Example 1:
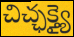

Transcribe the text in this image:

చిచ్ఛక్త్యై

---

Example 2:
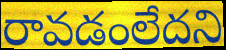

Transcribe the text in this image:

రావడంలేదని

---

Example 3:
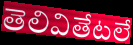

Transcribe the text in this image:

తెలివితేటలే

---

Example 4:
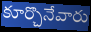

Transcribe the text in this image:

కూర్చొనేవారు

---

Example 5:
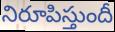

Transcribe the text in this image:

నిరూపిస్తుందీ